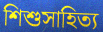
শিশুসাহিত্য